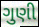
ગુણી